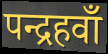
पन्द्रहवाँ